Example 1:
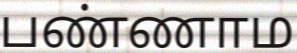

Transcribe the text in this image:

பண்ணாம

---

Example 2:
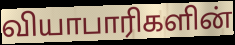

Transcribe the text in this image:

வியாபாரிகளின்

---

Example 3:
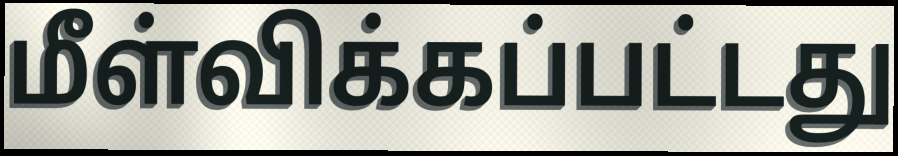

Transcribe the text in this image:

மீள்விக்கப்பட்டது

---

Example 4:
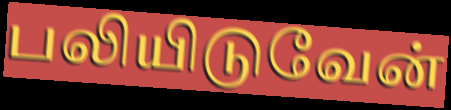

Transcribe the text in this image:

பலியிடுவேன்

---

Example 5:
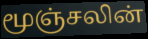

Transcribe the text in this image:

மூஞ்சலின்